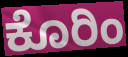
ಕೊರಿಂ